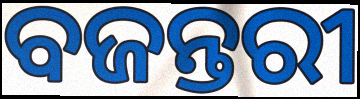
ବଜନ୍ତରୀ